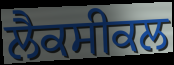
ਲੈਕਸੀਕਲ